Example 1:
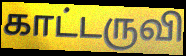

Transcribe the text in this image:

காட்டருவி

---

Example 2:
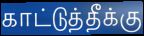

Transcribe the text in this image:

காட்டுத்தீக்கு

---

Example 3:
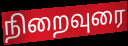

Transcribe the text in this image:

நிறைவுரை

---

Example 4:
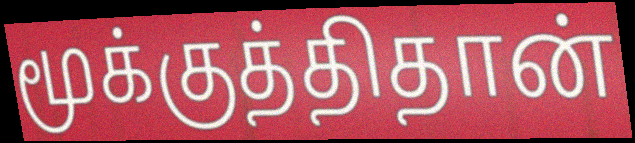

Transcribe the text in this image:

மூக்குத்திதான்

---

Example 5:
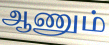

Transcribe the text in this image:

ஆணும்